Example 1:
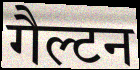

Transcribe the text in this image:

गैल्टन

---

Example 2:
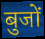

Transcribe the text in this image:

बुजों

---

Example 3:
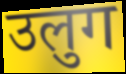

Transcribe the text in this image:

उलुग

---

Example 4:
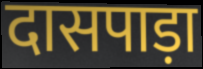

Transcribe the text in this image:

दासपाड़ा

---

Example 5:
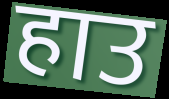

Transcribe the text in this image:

हाउ